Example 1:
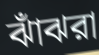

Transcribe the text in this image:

ঝাঁঝরা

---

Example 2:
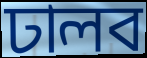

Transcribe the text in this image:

ঢালব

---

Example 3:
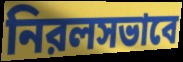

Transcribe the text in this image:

নিরলসভাবে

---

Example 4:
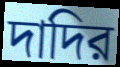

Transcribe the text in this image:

দাদির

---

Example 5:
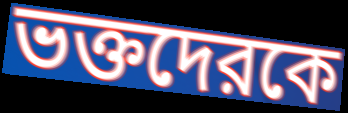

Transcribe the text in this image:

ভক্তদেরকে